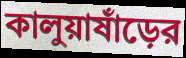
কালুয়াষাঁড়ের